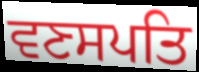
ਵਣਸਪਤਿ